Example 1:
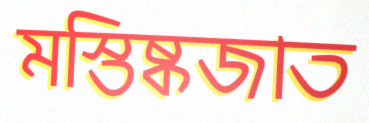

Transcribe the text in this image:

মস্তিষ্কজাত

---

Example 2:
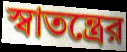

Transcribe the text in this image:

স্বাতন্ত্রের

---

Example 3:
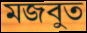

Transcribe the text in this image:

মজবুত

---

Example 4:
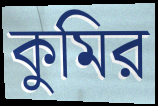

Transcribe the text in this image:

কুমির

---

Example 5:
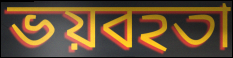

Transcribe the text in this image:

ভয়বহতা